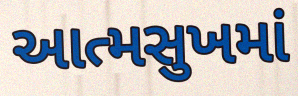
આત્મસુખમાં